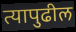
त्यापुढील